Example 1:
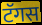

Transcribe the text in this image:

टॅगस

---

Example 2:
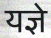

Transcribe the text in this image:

यज्ञे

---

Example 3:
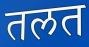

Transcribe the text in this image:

तलत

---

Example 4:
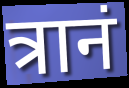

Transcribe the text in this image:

त्रानं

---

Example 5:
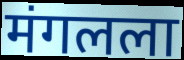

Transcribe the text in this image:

मंगलला